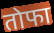
तोफा